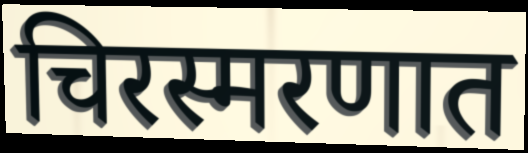
चिरस्मरणात